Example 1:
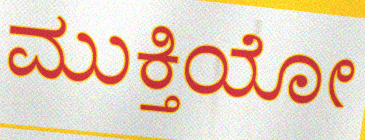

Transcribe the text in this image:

ಮುಕ್ತಿಯೋ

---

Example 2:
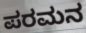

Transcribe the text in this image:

ಪರಮನ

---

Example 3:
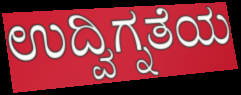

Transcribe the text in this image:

ಉದ್ವಿಗ್ನತೆಯ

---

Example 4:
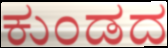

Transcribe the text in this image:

ಕುಂಡದ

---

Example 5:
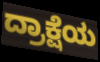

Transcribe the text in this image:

ದ್ರಾಕ್ಷೆಯ